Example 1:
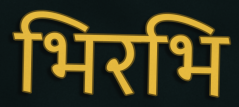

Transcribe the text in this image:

भिरभि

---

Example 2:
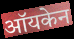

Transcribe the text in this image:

ऑयकेन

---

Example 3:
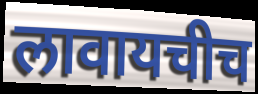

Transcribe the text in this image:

लावायचीच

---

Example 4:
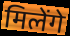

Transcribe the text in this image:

मिलेंगे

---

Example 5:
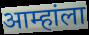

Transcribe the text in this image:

आम्हांला